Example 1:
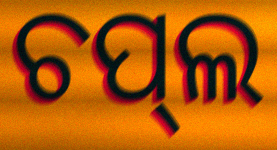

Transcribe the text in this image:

ଚପ୍‌ଲ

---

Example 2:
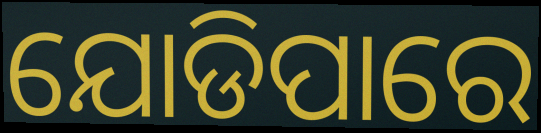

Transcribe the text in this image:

ଯୋଡିପାରେ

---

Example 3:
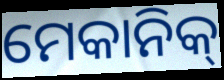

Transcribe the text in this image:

ମେକାନିକ୍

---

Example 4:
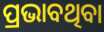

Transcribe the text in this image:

ପ୍ରଭାବଥିବା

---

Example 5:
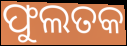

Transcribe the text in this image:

ଫୁଲତକ